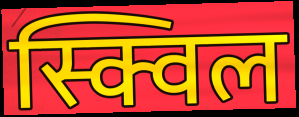
स्क्विल